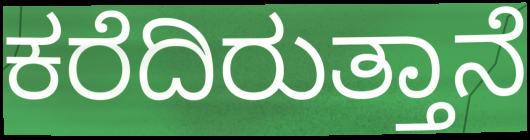
ಕರೆದಿರುತ್ತಾನೆ